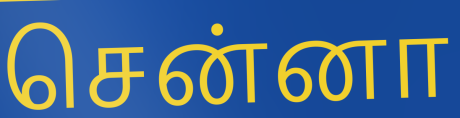
சென்னா